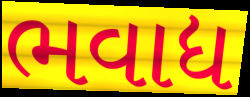
ભવાદ્ય